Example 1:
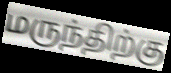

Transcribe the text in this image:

மருந்திற்கு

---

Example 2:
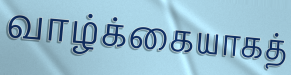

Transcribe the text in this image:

வாழ்க்கையாகத்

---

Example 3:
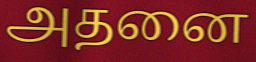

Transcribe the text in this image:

அதனை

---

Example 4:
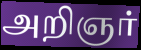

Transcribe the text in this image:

அறிஞர்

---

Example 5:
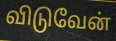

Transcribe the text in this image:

விடுவேன்